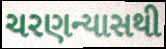
ચરણન્યાસથી